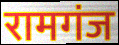
रामगंज